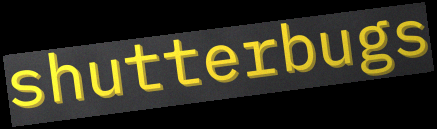
shutterbugs